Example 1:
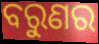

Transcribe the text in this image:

ବରୁଣର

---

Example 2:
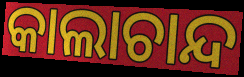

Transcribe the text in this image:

କାଲାଚାନ୍ଦ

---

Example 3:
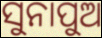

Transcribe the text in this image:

ସୁନାପୁଅ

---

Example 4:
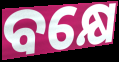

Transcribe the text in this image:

ବକ୍ଷେ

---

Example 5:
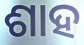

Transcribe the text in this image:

ଶାହ